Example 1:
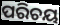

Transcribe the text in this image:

ପରିଚୟ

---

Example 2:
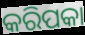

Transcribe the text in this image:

କରିପକା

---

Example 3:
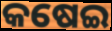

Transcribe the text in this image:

କଷେଇ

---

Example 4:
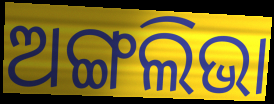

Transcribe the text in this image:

ଅଙ୍ଗଲିଭା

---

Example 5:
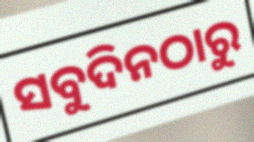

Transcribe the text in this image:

ସବୁଦିନଠାରୁ